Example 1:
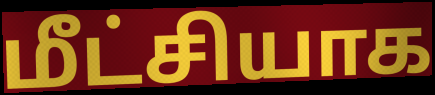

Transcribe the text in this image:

மீட்சியாக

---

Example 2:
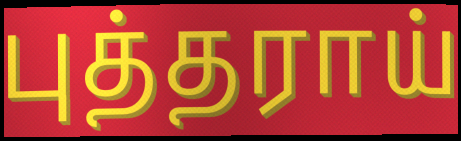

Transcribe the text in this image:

புத்தராய்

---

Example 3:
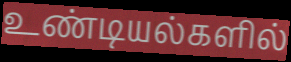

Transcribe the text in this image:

உண்டியல்களில்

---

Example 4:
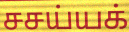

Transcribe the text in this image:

சசய்யக்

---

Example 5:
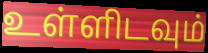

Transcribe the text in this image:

உள்ளிடவும்